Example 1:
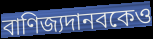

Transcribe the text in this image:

বাণিজ্যদানবকেও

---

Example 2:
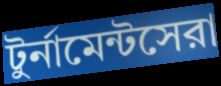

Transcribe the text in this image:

টুর্নামেন্টসেরা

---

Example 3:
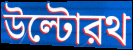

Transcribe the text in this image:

উল্টোরথ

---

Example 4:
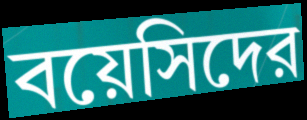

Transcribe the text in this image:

বয়েসিদের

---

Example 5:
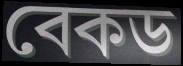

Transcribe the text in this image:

বেকড